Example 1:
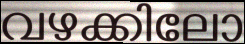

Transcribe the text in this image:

വഴക്കിലോ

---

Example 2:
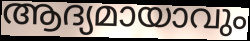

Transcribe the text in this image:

ആദ്യമായാവും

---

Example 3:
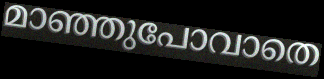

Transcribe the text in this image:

മാഞ്ഞുപോവാതെ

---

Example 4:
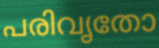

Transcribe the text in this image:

പരിവൃതോ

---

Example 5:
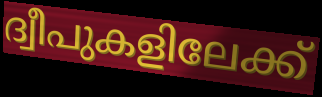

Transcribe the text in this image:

ദ്വീപുകളിലേക്ക്